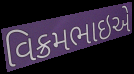
વિક્રમભાઇએ